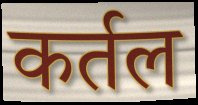
कर्तल